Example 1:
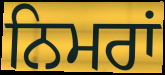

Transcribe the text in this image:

ਨਿਮਰਾਂ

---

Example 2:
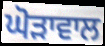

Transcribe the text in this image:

ਘੋੜਾਵਾਲ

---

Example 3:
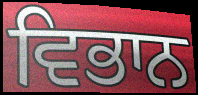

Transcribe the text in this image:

ਵਿਭਾਨ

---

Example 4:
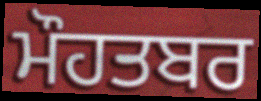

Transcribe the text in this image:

ਮੌਹਤਬਰ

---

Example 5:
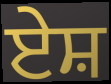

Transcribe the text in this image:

ਏਸ਼